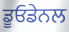
ਡੂਓਡੇਨਲ